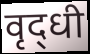
वृद्धी